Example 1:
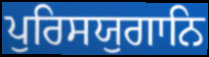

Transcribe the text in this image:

ਪੁਰਿਸਯੁਗਾਨਿ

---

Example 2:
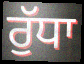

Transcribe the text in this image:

ਰੁੱਧਾ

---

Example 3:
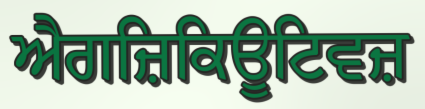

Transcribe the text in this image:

ਐਗਜ਼ਿਕਿਊਟਿਵਜ਼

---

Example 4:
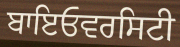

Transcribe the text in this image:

ਬਾਇਓਵਰਸਿਟੀ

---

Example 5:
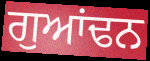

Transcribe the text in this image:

ਗੁਆਂਢਨ